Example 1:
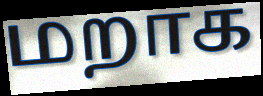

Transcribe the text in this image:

மறாக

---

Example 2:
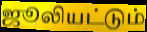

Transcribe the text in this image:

ஜூலியட்டும்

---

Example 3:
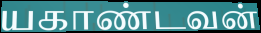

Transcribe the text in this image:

யகாண்டவன்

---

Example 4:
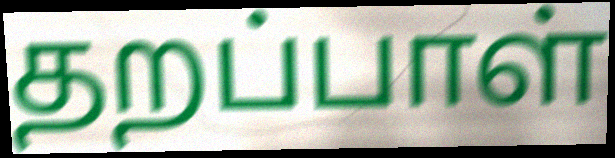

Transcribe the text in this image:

தறப்பாள்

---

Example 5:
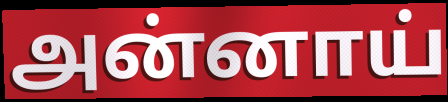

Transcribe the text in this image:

அன்னாய்